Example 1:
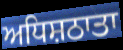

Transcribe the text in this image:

ਅਧਿਸ਼ਠਾਤਾ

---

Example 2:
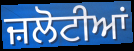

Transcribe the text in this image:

ਜ਼ਲੋਟੀਆਂ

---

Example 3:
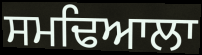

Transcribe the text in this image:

ਸਮਢਿਆਲਾ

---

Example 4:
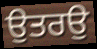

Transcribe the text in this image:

ਉਤਰਉ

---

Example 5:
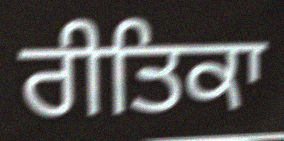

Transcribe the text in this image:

ਰੀਤਿਕਾ